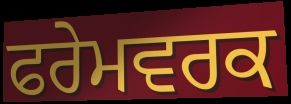
ਫਰੇਮਵਰਕ